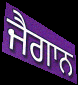
ਜੈਗਾਨ